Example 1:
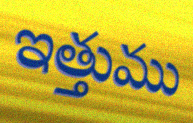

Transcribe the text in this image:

ఇత్తుము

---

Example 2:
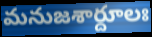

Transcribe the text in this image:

మనుజశార్దూలః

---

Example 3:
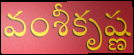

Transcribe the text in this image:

వంశీకృష్ణ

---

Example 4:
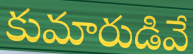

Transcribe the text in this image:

కుమారుడివే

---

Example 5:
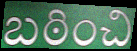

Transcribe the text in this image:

బఠించి